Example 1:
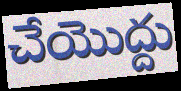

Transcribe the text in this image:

చేయొద్దు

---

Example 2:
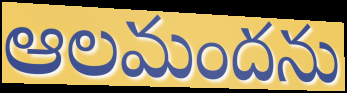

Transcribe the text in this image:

ఆలమందను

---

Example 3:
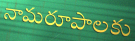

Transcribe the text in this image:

నామరూపాలకు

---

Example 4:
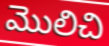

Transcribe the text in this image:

మొలిచి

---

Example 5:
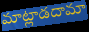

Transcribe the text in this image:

మాట్లాడదామా